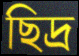
ছিদ্ৰ